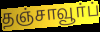
தஞ்சாவூர்ப்